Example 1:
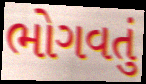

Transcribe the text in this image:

ભોગવતું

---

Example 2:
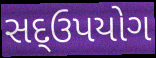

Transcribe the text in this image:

સદ્ઉપયોગ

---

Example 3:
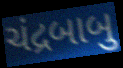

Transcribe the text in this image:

ચંદ્રબાબુ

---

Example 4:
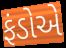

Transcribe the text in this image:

ફંડોએ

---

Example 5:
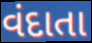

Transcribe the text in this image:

વંદાતા